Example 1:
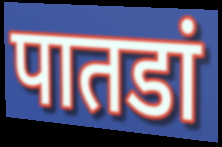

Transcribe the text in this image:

पातडां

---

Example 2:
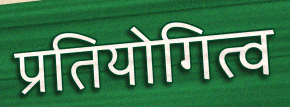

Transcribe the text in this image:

प्रतियोगित्व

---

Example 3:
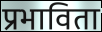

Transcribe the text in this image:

प्रभाविता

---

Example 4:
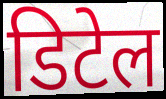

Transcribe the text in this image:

डिटेल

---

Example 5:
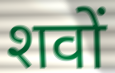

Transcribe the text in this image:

शवों